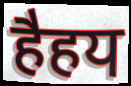
हैहय